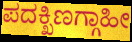
ಪದಕ್ಖಿಣಗ್ಗಾಹೀ